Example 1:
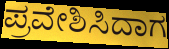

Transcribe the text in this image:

ಪ್ರವೇಶಿಸಿದಾಗ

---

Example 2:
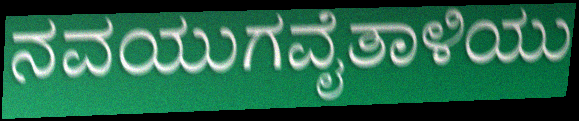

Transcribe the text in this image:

ನವಯುಗವೈತಾಳಿಯು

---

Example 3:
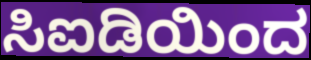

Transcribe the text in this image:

ಸಿಐಡಿಯಿಂದ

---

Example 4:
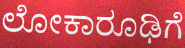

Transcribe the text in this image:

ಲೋಕಾರೂಢಿಗೆ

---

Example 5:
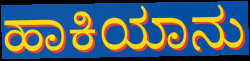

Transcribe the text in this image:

ಹಾಕಿಯಾನು